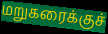
மறுகரைக்குச்